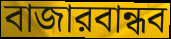
বাজারবান্ধব